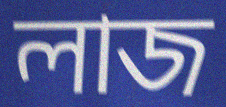
লাজ